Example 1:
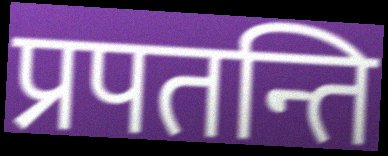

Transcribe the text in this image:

प्रपतन्ति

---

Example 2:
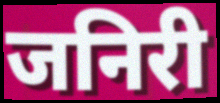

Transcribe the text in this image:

जनिरी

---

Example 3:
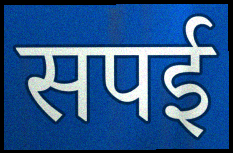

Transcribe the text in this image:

सपई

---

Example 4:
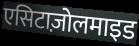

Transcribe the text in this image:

एसिटाज़ोलमाइड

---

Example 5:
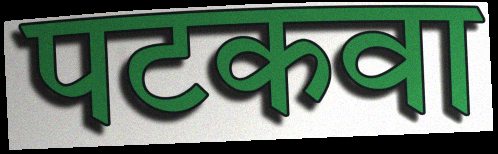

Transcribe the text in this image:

पटकवा